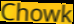
Chowk